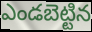
ఎండబెట్టిన